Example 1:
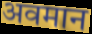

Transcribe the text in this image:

अवमान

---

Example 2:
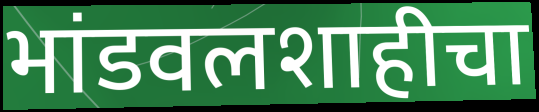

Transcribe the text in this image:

भांडवलशाहीचा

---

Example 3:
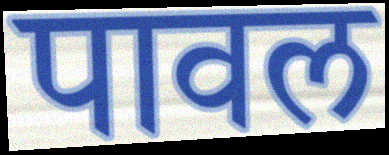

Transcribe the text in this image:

पावल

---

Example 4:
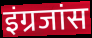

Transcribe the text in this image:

इंग्रजांस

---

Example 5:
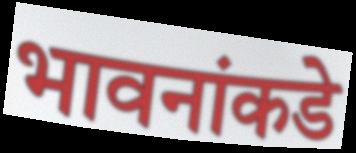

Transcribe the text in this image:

भावनांकडे